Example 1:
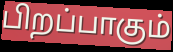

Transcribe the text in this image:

பிறப்பாகும்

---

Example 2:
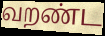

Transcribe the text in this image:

வறண்ட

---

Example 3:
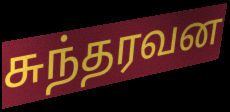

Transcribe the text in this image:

சுந்தரவன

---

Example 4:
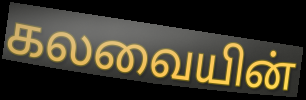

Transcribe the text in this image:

கலவையின்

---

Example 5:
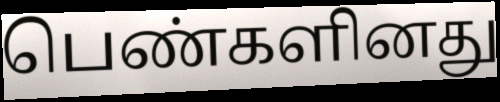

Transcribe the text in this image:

பெண்களினது